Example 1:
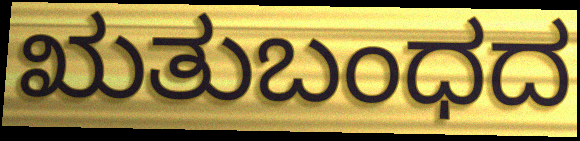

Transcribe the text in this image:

ಋತುಬಂಧದ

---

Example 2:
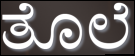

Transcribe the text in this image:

ತೊಲೆ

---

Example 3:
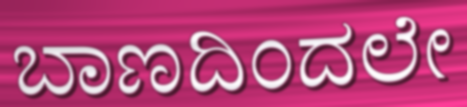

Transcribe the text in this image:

ಬಾಣದಿಂದಲೇ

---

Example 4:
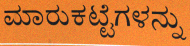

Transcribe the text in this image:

ಮಾರುಕಟ್ಟೆಗಳನ್ನು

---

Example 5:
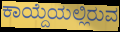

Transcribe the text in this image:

ಕಾಯ್ದೆಯಲ್ಲಿರುವ